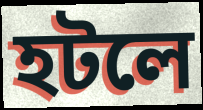
হটলে